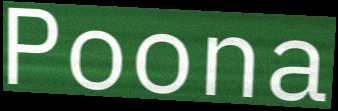
Poona